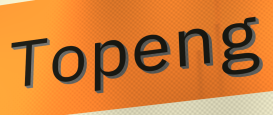
Topeng